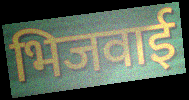
भिजवाई